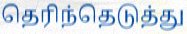
தெரிந்தெடுத்து